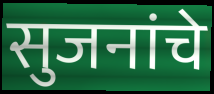
सुजनांचे